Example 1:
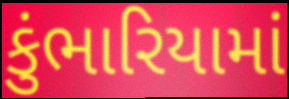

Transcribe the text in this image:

કુંભારિયામાં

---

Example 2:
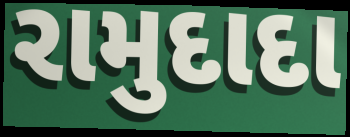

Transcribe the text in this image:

રામુદાદા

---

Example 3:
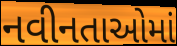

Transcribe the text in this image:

નવીનતાઓમાં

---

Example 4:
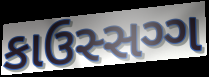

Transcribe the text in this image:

કાઉસ્સગ્ગ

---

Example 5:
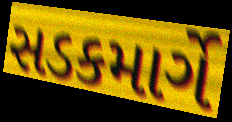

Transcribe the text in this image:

સડકમાર્ગે